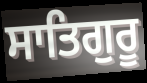
ਸਾਤਿਗੁਰੂ